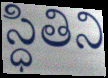
స్ధితిని